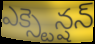
ఎక్స్టెన్షన్